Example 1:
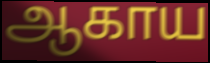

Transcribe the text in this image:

ஆகாய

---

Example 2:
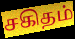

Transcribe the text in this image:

சகிதம்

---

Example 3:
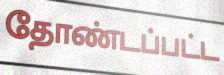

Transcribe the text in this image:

தோண்டப்பட்ட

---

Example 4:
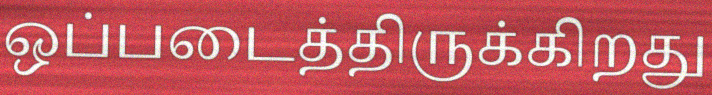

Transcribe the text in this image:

ஒப்படைத்திருக்கிறது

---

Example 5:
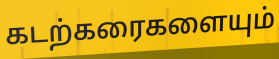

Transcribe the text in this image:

கடற்கரைகளையும்